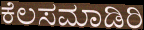
ಕೆಲಸಮಾಡಿರಿ